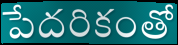
పేదరికంతో